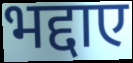
भद्दाए